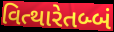
વિત્થારેતબ્બં